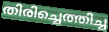
തിരിച്ചെത്തിച്ച